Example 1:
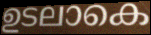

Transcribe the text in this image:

ഉടലാകെ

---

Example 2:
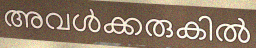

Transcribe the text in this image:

അവൾക്കരുകിൽ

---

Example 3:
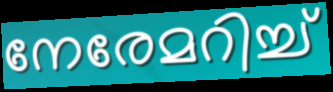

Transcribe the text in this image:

നേരേമറിച്ച്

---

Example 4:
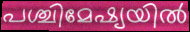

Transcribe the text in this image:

പശ്ചിമേഷ്യയിൽ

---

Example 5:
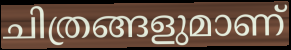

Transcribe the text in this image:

ചിത്രങ്ങളുമാണ്